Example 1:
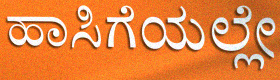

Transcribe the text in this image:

ಹಾಸಿಗೆಯಲ್ಲೇ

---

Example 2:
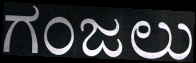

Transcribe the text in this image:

ಗಂಜಲು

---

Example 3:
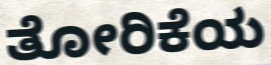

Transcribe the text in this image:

ತೋರಿಕೆಯ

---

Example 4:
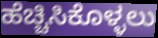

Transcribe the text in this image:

ಹೆಚ್ಚಿಸಿಕೊಳ್ಳಲು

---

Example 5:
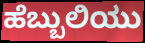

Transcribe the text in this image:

ಹೆಬ್ಬುಲಿಯು